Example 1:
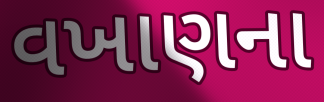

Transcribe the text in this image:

વખાણના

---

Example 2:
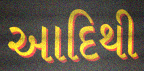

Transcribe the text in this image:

આદિથી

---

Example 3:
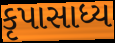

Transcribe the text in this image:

કૃપાસાધ્ય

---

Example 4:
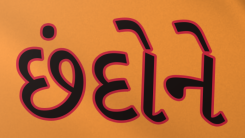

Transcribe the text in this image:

છંદોને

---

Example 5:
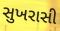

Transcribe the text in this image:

સુખરાસી